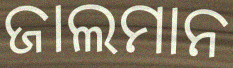
ଜାଲମାନ